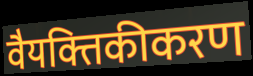
वैयक्तिकीकरण